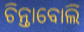
ଚିନ୍ତାବୋଲି